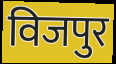
विजपुर